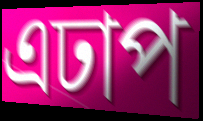
এঢাপ